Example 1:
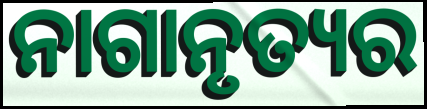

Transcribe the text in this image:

ନାଗାନୃତ୍ୟର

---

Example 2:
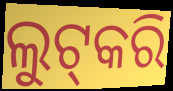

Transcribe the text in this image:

ଲୁଟ୍‍କରି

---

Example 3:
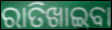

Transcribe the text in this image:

ରାତିଖାଇବା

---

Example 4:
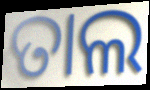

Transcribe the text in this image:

ତାଲ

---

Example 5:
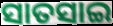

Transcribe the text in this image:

ସାତସାଇ